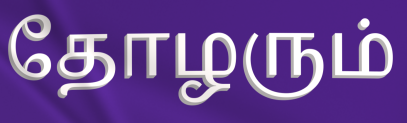
தோழரும்